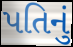
પતિનું